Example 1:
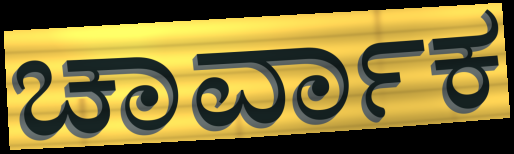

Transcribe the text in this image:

ಚಾರ್ವಾಕ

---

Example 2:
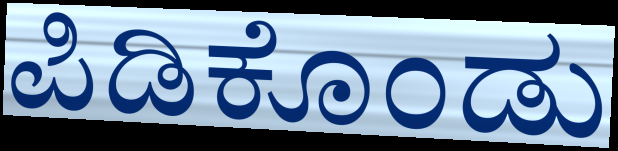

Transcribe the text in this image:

ಪಿಡಿಕೊಂಡು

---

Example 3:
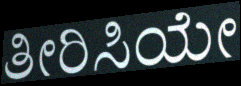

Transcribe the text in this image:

ತೀರಿಸಿಯೇ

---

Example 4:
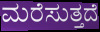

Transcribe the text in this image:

ಮರೆಸುತ್ತದೆ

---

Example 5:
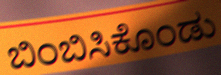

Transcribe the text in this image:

ಬಿಂಬಿಸಿಕೊಂಡು